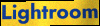
Lightroom